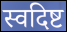
स्वदिष्ट